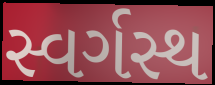
સ્વર્ગસ્થ